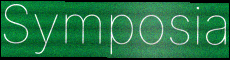
Symposia